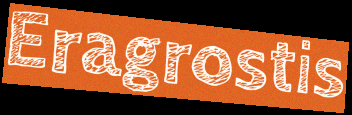
Eragrostis